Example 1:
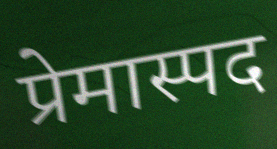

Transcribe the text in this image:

प्रेमास्पद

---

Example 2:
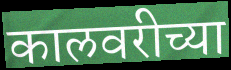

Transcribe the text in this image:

कालवरीच्या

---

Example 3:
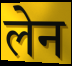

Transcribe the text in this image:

लेन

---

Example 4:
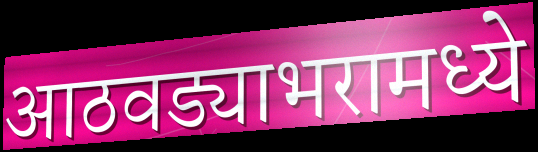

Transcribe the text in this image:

आठवड्याभरामध्ये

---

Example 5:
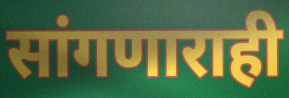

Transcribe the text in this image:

सांगणाराही